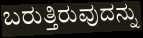
ಬರುತ್ತಿರುವುದನ್ನು